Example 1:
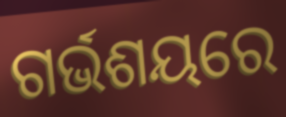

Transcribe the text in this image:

ଗର୍ଭଶୟରେ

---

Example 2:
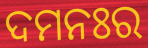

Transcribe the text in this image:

ଦମନଃର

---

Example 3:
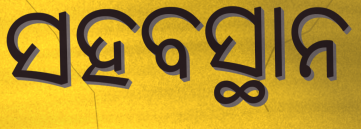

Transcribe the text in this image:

ସହବସ୍ଥାନ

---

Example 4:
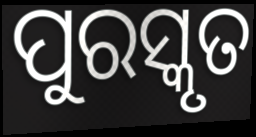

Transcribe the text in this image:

ପୁରସ୍କୃତ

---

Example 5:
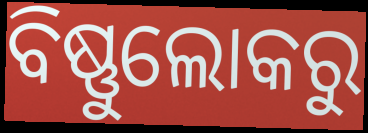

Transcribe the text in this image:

ବିଷ୍ଣୁଲୋକରୁ